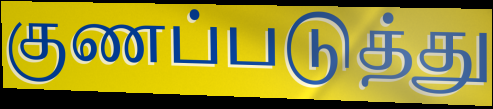
குணப்படுத்து